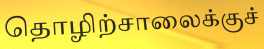
தொழிற்சாலைக்குச்